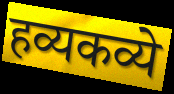
हव्यकव्ये